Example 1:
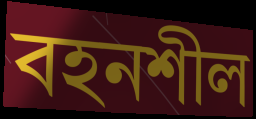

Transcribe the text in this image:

বহনশীল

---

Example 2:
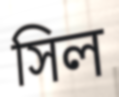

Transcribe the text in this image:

সিল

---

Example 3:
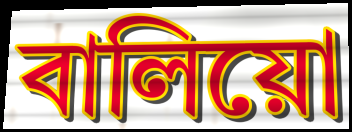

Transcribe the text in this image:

বালিয়ো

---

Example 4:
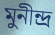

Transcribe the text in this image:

মুনীন্দ্ৰ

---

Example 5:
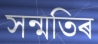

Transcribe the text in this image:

সন্মতিৰ